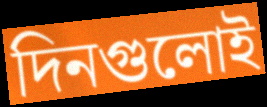
দিনগুলোই